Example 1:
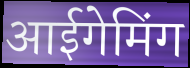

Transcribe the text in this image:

आईगेमिंग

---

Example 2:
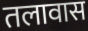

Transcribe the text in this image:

तलावास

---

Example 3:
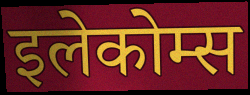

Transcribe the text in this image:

इलेकोम्स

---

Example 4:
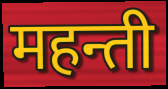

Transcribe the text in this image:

महन्ती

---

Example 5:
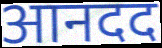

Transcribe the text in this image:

आनदद